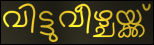
വിട്ടുവീഴ്ചയ്ക്ക്